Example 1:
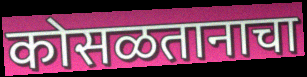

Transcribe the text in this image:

कोसळतानाचा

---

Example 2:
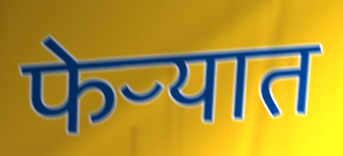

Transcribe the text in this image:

फेऱ्यात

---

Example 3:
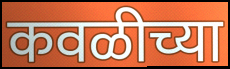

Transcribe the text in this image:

कवळीच्या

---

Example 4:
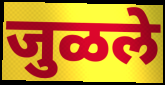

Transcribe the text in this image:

जुळले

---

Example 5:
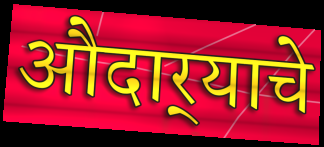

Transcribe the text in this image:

औदार्याचे